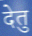
देतु